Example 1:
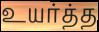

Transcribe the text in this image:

உயர்த்த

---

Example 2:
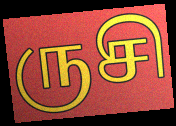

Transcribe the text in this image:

ருசி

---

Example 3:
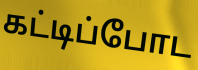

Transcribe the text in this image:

கட்டிப்போட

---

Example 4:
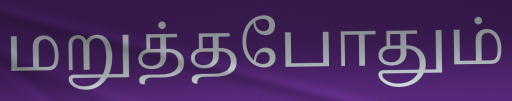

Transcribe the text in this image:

மறுத்தபோதும்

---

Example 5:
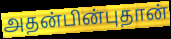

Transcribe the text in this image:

அதன்பின்புதான்